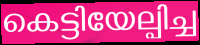
കെട്ടിയേല്പിച്ച